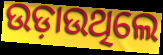
ଉଡ଼ାଉଥିଲେ